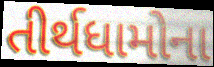
તીર્થધામોના